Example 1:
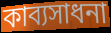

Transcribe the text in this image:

কাব্যসাধনা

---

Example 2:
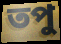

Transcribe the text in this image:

তপু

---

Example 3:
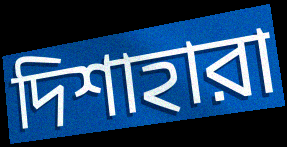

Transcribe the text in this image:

দিশাহারা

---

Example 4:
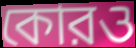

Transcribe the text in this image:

কোরও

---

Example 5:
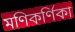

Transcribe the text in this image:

মণিকর্ণিকা